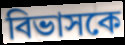
বিভাসকে